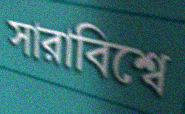
সারাবিশ্বে